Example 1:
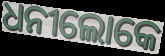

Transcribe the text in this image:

ଧନୀଲୋକେ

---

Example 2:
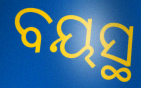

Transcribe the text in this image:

ବୟସ୍ଥ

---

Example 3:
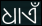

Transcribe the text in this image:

ଧାଏଁ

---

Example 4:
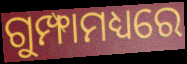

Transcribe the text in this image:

ଗୁମ୍ଫାମଧ୍ୟରେ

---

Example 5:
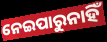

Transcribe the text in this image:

ନେଇପାରୁନାହିଁ